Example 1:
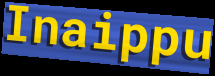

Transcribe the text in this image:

Inaippu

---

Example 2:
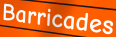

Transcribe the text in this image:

Barricades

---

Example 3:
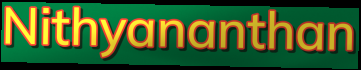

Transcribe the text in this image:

Nithyananthan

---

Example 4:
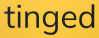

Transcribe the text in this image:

tinged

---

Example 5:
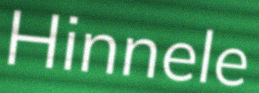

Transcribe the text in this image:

Hinnele